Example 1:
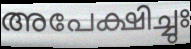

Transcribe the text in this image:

അപേക്ഷിച്ചുഃ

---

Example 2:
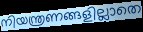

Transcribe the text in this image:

നിയന്ത്രണങ്ങളില്ലാതെ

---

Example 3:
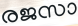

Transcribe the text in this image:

രജസാ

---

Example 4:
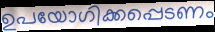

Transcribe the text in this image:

ഉപയോഗിക്കപ്പെടണം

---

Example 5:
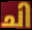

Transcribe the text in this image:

ചി